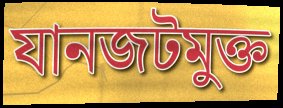
যানজটমুক্ত